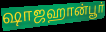
ஷாஜஹான்பூர்